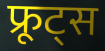
फ्रूट्स